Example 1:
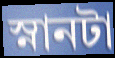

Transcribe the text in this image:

স্নানটা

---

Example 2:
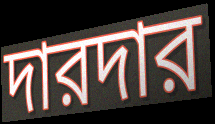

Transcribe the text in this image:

দারদার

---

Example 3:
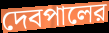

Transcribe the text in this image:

দেবপালের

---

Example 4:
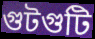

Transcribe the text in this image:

গুটগুটি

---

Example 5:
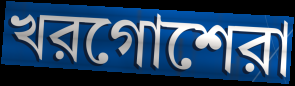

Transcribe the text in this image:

খরগোশেরা